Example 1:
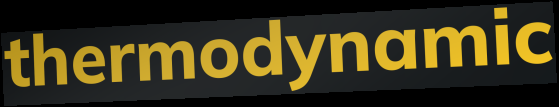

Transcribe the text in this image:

thermodynamic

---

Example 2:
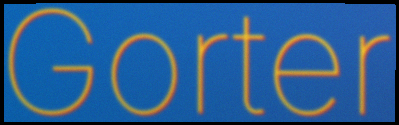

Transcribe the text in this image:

Gorter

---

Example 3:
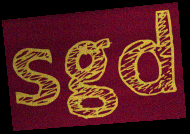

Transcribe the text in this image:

sgd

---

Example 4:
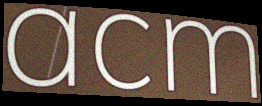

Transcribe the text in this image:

acm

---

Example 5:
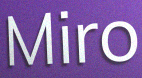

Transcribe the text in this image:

Miro